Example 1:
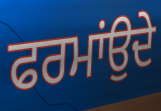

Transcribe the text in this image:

ਫਰਮਾਂਉਦੇ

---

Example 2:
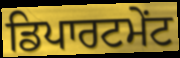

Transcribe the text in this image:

ਡਿਪਾਰਟਮੇਂਟ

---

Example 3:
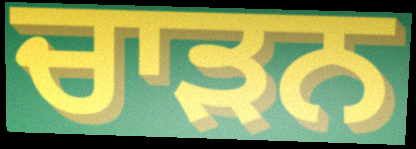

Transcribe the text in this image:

ਚਾੜਨ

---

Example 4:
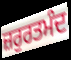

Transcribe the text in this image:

ਜ਼ਰੁਰਤਮੰਦ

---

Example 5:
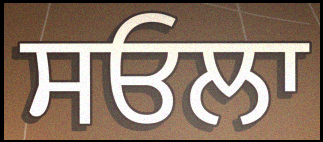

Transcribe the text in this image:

ਸਓਲਾ